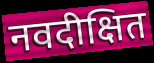
नवदीक्षित